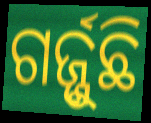
ଗର୍ଜ୍ଜୁଛି